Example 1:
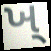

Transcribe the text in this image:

ખ્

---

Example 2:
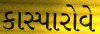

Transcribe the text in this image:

કાસ્પારોવે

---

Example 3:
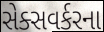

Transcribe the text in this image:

સેક્સવર્કરના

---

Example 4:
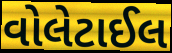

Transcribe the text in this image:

વોલેટાઈલ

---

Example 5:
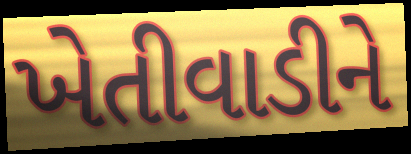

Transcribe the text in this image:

ખેતીવાડીને